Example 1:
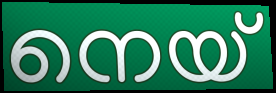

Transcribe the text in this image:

നെയ്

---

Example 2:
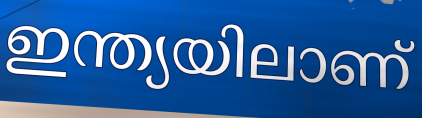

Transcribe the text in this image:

ഇന്ത്യയിലാണ്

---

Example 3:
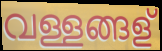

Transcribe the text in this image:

വള്ളങ്ങള്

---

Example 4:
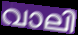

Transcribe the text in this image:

വാലി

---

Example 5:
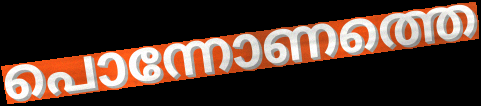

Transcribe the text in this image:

പൊന്നോണത്തെ